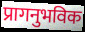
प्रागनुभविक